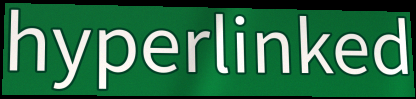
hyperlinked